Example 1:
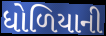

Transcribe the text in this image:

ધોળિયાની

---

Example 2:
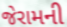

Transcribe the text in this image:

જેરામની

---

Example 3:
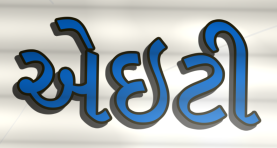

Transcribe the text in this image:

એઇટી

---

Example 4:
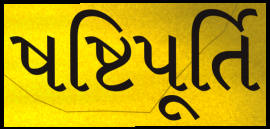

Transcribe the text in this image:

ષષ્ટિપૂર્તિ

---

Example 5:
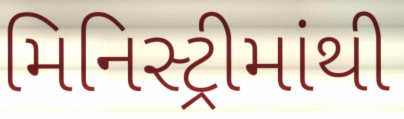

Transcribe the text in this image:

મિનિસ્ટ્રીમાંથી